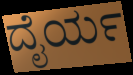
ದೈರ್ಯ